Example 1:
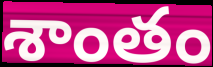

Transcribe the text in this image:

శాంతం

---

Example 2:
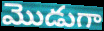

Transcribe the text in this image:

మొడుగా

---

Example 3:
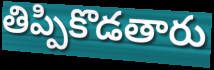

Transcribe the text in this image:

తిప్పికొడతారు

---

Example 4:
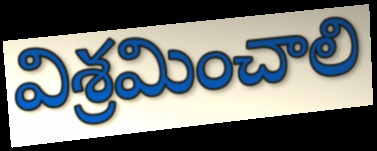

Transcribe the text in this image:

విశ్రమించాలి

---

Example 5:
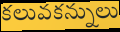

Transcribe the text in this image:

కలువకన్నులు